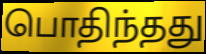
பொதிந்தது